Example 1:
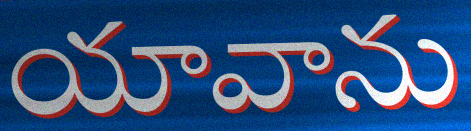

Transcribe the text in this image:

యావాను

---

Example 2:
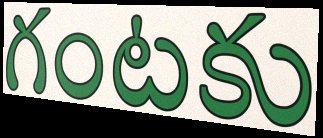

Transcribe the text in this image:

గంటకు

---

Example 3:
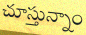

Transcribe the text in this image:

చూస్తున్నాం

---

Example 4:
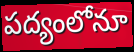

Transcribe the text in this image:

పద్యంలోనూ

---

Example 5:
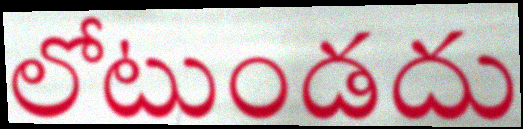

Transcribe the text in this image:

లోటుండదు